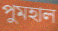
পুমহাল